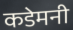
कडेमनी